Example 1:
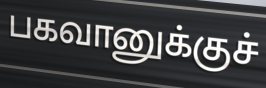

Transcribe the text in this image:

பகவானுக்குச்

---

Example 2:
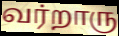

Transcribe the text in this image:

வர்றாரு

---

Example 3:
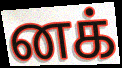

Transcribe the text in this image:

னக்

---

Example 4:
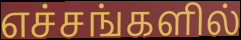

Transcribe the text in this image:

எச்சங்களில்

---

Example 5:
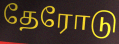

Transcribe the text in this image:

தேரோடு